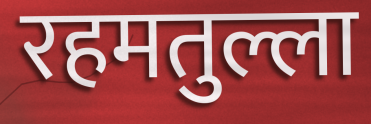
रहमतुल्ला